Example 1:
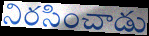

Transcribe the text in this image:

నిరసించాడు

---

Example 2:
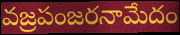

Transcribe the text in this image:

వజ్రపంజరనామేదం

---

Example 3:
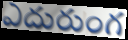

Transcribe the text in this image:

ఎదురుంగ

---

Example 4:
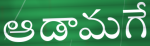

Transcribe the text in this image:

ఆడామగే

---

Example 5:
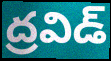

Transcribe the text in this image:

ద్రవిడ్